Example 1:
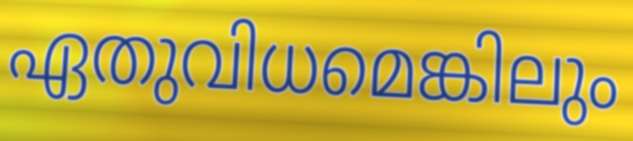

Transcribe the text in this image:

ഏതുവിധമെങ്കിലും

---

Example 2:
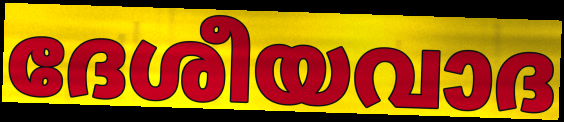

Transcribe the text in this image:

ദേശീയവാദ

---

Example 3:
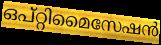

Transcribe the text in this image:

ഒപ്റ്റിമൈസേഷൻ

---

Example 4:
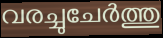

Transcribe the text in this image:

വരച്ചുചേർത്തു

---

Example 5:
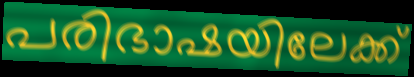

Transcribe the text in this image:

പരിഭാഷയിലേക്ക്